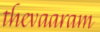
thevaaram